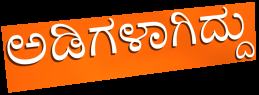
ಅಡಿಗಳಾಗಿದ್ದು